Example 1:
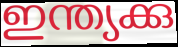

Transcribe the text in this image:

ഇന്ത്യക്കു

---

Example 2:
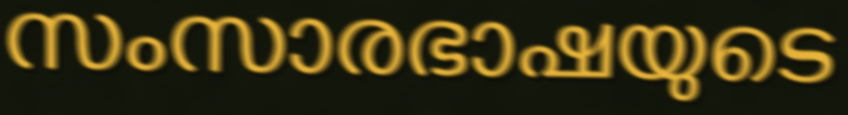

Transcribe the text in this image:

സംസാരഭാഷയുടെ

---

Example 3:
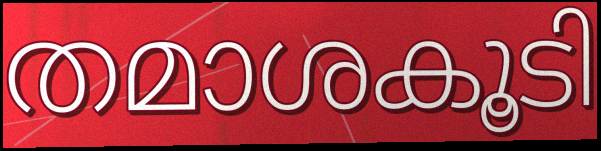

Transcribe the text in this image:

തമാശകൂടി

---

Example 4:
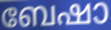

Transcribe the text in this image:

ബേഷാ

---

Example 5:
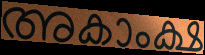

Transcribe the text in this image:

അകാംക്ഷ